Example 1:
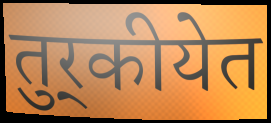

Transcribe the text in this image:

तुर्कीयेत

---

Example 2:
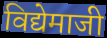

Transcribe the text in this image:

विद्येमाजी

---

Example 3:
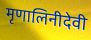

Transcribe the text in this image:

मृणालिनीदेवी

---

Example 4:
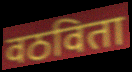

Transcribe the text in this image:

वठविता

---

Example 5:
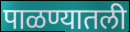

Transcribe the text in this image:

पाळण्यातली